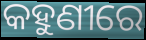
କହୁଣୀରେ